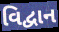
વિદ્વાન